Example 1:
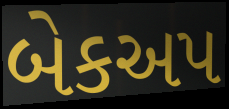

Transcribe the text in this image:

બેકઅપ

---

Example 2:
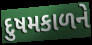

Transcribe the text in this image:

દુષમકાળને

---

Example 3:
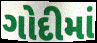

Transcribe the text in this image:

ગોદીમાં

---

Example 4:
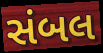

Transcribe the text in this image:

સંબલ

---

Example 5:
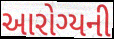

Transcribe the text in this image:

આરોગ્યની